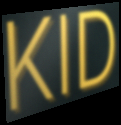
KID